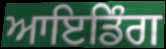
ਆਇਡਿੰਗ